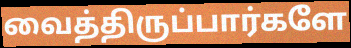
வைத்திருப்பார்களே